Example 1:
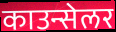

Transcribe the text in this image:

काउन्सेलर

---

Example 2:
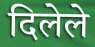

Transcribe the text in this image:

दिलेले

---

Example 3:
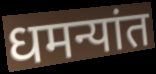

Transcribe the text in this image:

धमन्यांत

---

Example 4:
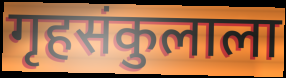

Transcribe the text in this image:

गृहसंकुलाला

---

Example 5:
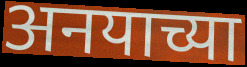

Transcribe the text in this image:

अनयाच्या